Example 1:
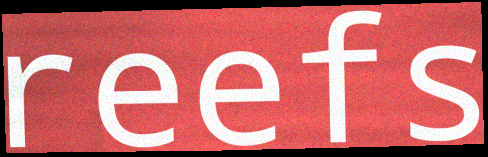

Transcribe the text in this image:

reefs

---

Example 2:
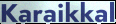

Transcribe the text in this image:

Karaikkal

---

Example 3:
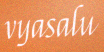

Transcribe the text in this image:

vyasalu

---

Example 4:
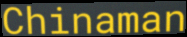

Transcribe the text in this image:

Chinaman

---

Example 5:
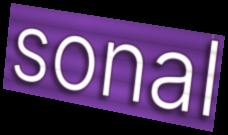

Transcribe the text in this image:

sonal